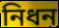
নিধন